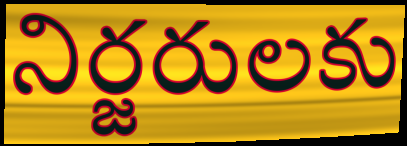
నిర్జరులకు